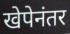
खेपेनंतर